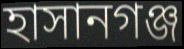
হাসানগঞ্জ